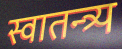
स्वातन्त्र्य